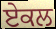
ਏਕਲ